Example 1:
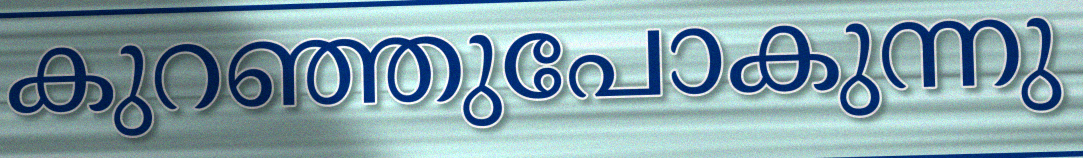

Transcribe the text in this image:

കുറഞ്ഞുപോകുന്നു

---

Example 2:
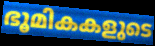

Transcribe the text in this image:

ഭൂമികകളുടെ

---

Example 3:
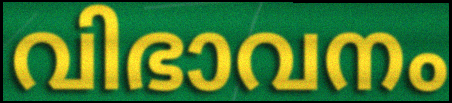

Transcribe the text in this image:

വിഭാവനം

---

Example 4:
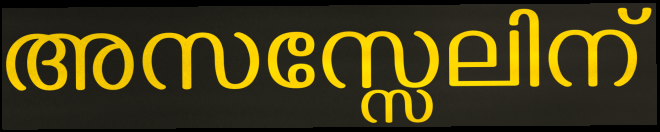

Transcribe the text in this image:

അസസ്സേലിന്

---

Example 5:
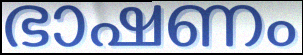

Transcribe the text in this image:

ഭാഷണം